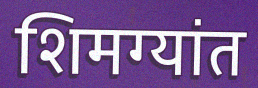
शिमग्यांत